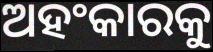
ଅହଂକାରକୁ